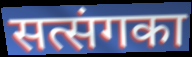
सत्संगका